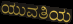
ಯುವತಿಯ